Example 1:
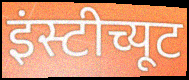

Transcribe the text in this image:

इंस्‍टीच्‍यूट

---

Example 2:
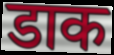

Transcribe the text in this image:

डाक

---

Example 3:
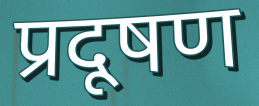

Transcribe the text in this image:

प्रदूषण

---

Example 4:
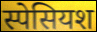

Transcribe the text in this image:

स्पेसियश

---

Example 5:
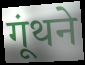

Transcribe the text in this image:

गूंथने